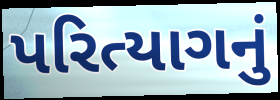
પરિત્યાગનું